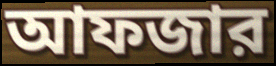
আফজার